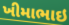
ખીમાભાઇ